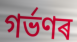
গৰ্ভণৰ